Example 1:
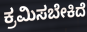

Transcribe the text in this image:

ಕ್ರಮಿಸಬೇಕಿದೆ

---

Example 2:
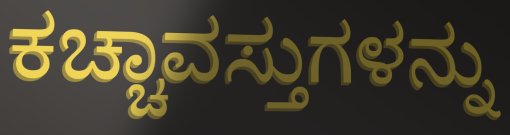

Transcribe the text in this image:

ಕಚ್ಚಾವಸ್ತುಗಳನ್ನು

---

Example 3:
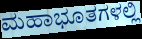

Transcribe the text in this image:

ಮಹಾಭೂತಗಳಲ್ಲಿ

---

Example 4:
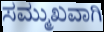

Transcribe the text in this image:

ಸಮ್ಮುಖವಾಗಿ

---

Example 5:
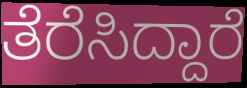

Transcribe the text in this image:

ತೆರೆಸಿದ್ದಾರೆ